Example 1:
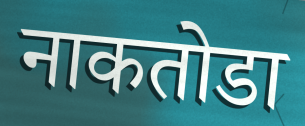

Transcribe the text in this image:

नाकतोडा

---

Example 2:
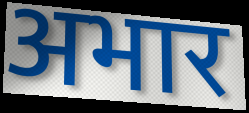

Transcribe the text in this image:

अभार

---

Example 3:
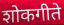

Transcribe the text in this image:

शोकगीते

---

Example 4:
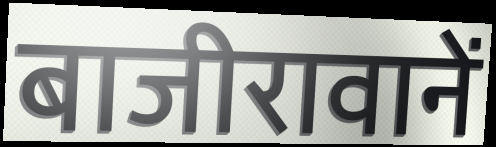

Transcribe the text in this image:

बाजीरावानें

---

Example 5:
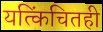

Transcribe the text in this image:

यत्किंचितही